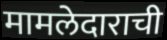
मामलेदाराची